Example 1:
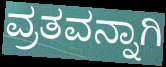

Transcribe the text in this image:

ವ್ರತವನ್ನಾಗಿ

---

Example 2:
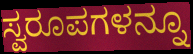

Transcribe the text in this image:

ಸ್ವರೂಪಗಳನ್ನೂ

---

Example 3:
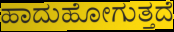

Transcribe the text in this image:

ಹಾದುಹೋಗುತ್ತದೆ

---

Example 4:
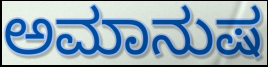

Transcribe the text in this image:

ಅಮಾನುಷ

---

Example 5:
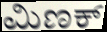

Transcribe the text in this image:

ಮಿಣಕ್